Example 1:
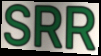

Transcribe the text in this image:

SRR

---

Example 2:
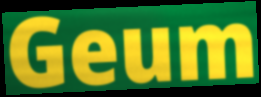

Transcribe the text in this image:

Geum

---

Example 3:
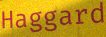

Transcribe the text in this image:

Haggard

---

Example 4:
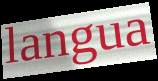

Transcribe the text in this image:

langua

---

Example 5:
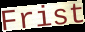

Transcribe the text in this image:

Frist